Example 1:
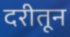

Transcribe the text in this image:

दरीतून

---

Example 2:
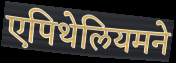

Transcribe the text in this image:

एपिथेलियमने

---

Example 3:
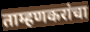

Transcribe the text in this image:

ताम्हणकरांचा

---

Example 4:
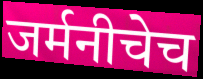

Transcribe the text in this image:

जर्मनीचेच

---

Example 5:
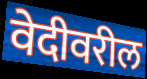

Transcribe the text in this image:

वेदीवरील